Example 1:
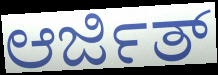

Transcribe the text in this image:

ಆರ್ಜಿತ್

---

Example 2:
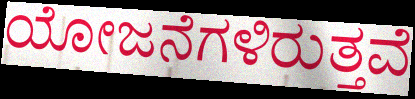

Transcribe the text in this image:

ಯೋಜನೆಗಳಿರುತ್ತವೆ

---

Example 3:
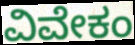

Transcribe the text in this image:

ವಿವೇಕಂ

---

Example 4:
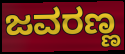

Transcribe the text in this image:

ಜವರಣ್ಣ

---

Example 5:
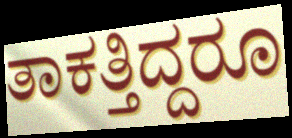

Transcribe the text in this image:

ತಾಕತ್ತಿದ್ದರೂ